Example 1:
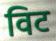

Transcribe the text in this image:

विट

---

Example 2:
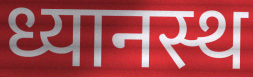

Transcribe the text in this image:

ध्यानस्थ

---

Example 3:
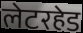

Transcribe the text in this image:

लेटरहेड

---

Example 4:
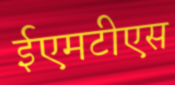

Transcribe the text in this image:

ईएमटीएस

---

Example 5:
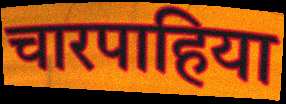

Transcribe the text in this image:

चारपाहिया